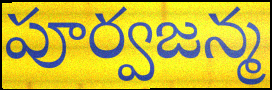
పూర్వజన్మ